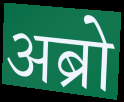
अब्रो